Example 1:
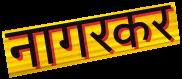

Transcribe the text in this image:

नागरकर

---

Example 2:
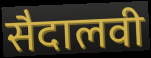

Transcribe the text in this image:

सैदालवी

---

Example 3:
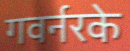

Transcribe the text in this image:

गवर्नरके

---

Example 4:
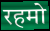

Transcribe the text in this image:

रहमो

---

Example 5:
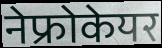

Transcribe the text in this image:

नेफ्रोकेयर